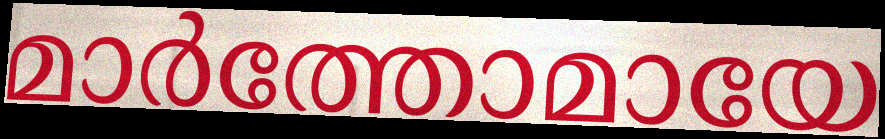
മാർത്തോമായേ